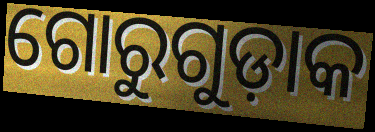
ଗୋରୁଗୁଡ଼ାକ